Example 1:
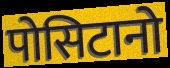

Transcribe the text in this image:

पोसिटानो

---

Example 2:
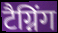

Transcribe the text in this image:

टैग्निंग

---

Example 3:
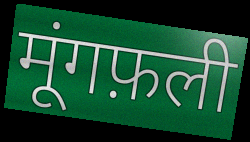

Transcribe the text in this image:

मूंगफ़ली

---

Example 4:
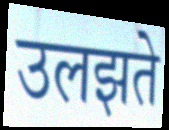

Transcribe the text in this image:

उलझते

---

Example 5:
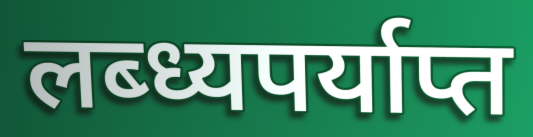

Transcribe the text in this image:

लब्ध्यपर्याप्त